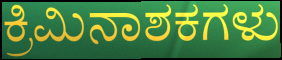
ಕ್ರಿಮಿನಾಶಕಗಳು